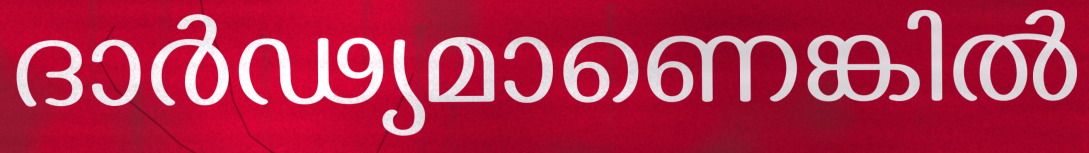
ദാർഢ്യമാണെങ്കിൽ